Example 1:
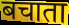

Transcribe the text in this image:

बचाता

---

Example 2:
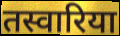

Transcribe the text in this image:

तस्वारिया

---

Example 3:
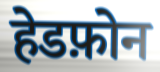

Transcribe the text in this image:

हेडफ़ोन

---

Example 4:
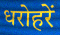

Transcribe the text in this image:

धरोहरें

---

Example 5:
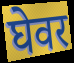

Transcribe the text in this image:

घेवर